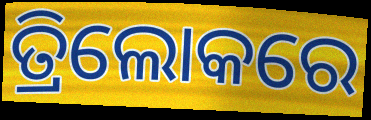
ତ୍ରିଲୋକରେ